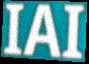
IAI